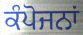
ਕੰਪੋਜਨਾਂ